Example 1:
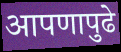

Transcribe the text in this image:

आपणापुढे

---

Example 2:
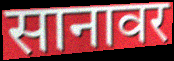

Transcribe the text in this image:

सानावर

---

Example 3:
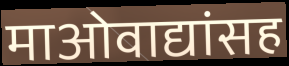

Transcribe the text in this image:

माओवाद्यांसह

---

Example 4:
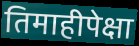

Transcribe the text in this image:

तिमाहीपेक्षा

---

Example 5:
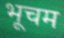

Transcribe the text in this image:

भूचम